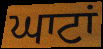
ਘਾਟਾਂ